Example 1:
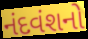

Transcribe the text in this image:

નંદવંશનો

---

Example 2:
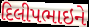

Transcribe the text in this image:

દિલીપભાઇને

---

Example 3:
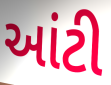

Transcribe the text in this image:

આંટી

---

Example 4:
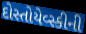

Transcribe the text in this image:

દોસ્તોયેવ્સ્કીની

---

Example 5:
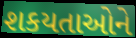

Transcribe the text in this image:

શકયતાઓને